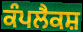
ਕੰਪਲੈਕਸ਼